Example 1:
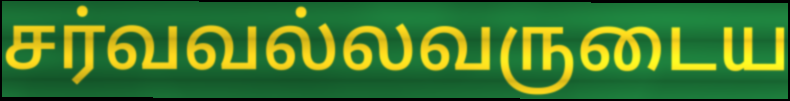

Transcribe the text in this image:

சர்வவல்லவருடைய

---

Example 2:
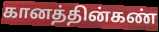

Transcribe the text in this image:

கானத்தின்கண்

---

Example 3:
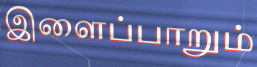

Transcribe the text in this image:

இளைப்பாறும்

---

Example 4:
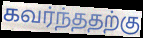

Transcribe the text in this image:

கவர்ந்ததற்கு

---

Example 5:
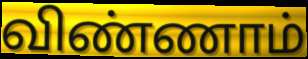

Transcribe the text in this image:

விண்ணாம்